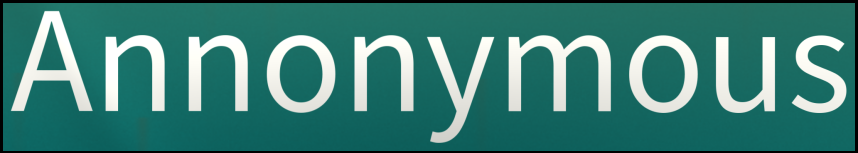
Annonymous